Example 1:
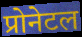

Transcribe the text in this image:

प्रोनेटल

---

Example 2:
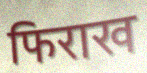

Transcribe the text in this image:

फिराख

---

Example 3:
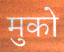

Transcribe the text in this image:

मुको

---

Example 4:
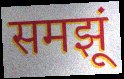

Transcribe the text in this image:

समझूं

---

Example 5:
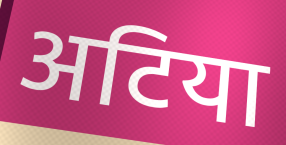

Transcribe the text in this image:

अटिया